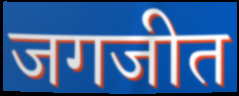
जगजीत